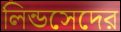
লিন্ডসেদের